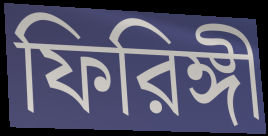
ফিরিঙ্গী